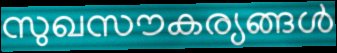
സുഖസൗകര്യങ്ങൾ